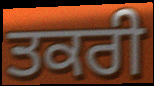
ਤਕਰੀ